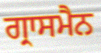
ਗ੍ਰਾਸਮੈਨ